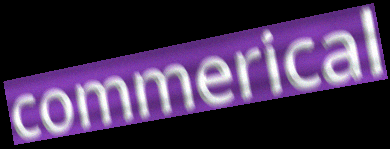
commerical